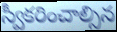
స్వీకరించాల్సిన